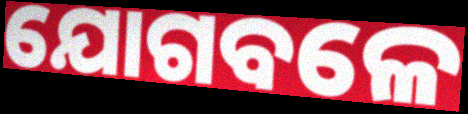
ଯୋଗବଳେ